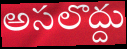
అసలొద్దు